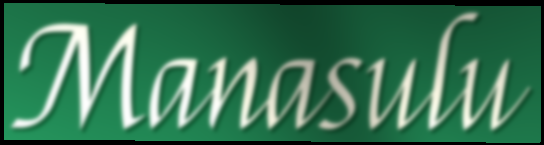
Manasulu